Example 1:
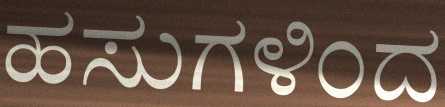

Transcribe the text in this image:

ಹಸುಗಳಿಂದ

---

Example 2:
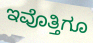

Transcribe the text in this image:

ಇವೊತ್ತಿಗೂ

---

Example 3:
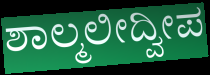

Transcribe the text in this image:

ಶಾಲ್ಮಲೀದ್ವೀಪ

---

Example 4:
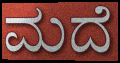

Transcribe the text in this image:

ಮದೆ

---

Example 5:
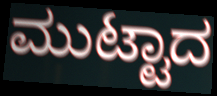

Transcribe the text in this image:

ಮುಟ್ಟಾದ